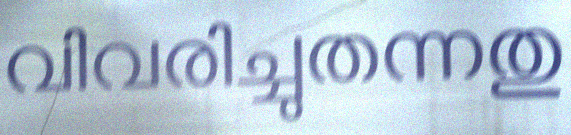
വിവരിച്ചുതന്നതു